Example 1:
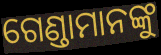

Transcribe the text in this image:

ଗେଣ୍ଡାମାନଙ୍କୁ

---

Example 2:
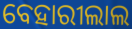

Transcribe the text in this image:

ବେହାରୀଲାଲ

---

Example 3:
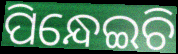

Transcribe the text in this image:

ପିନ୍ଧେଇଚି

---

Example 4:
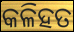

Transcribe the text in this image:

କଳିହତ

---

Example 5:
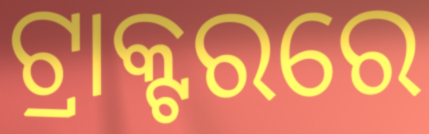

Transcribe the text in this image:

ଟ୍ରାକ୍ଟରରେ